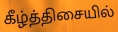
கீழ்த்திசையில்